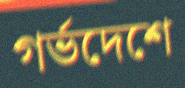
গর্ভদেশে